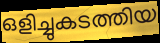
ഒളിച്ചുകടത്തിയ